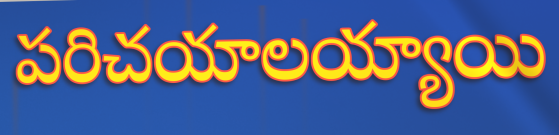
పరిచయాలయ్యాయి